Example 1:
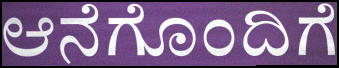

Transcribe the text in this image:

ಆನೆಗೊಂದಿಗೆ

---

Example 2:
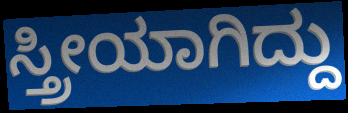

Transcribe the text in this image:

ಸ್ತ್ರೀಯಾಗಿದ್ದು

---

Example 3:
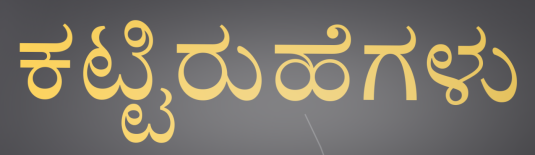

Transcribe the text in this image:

ಕಟ್ಟಿರುಹೆಗಳು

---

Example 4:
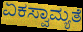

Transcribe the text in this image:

ಏಕಸ್ವಾಮ್ಯತೆ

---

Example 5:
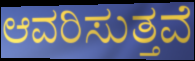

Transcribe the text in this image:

ಆವರಿಸುತ್ತವೆ